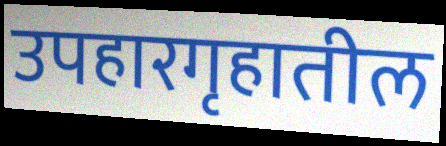
उपहारगृहातील